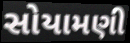
સોયામણી